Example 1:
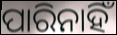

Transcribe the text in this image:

ପାରିନାହିଁ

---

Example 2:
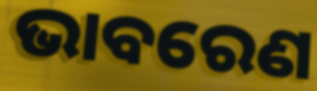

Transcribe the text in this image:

ଭାବରେଣ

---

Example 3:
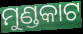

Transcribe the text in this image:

ମୁଣ୍ଡକାଟ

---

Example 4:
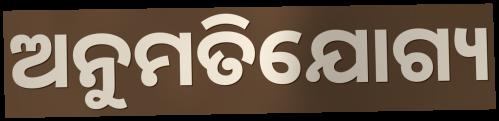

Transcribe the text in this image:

ଅନୁମତିଯୋଗ୍ୟ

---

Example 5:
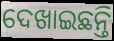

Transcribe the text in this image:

ଦେଖାଇଛନ୍ତି